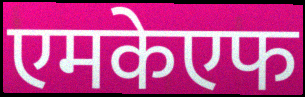
एमकेएफ